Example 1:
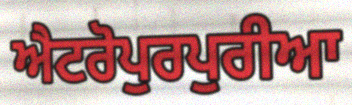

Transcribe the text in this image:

ਐਟਰੋਪੁਰਪੁਰੀਆ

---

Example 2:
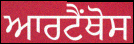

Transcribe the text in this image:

ਆਰਟੈਂਥੋਸ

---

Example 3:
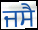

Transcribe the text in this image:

ਜਸੈ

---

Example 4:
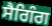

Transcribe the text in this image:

ਸੈਗਿੰਗ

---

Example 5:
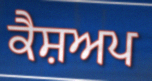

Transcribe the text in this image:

ਕੈਸ਼ਅਪ